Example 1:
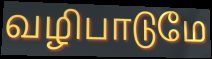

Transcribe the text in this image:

வழிபாடுமே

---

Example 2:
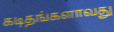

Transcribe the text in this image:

கடிதங்களாவது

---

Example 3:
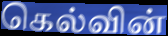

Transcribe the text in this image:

கெல்வின்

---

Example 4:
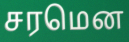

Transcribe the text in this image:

சரமென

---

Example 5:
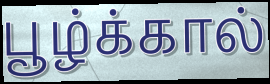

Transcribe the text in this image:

பூழ்க்கால்